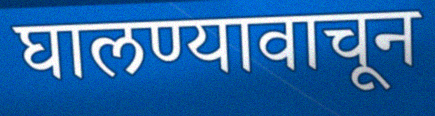
घालण्यावाचून